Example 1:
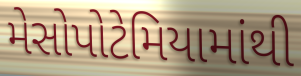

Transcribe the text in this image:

મેસોપોટેમિયામાંથી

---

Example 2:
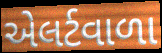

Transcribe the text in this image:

એલર્ટવાળા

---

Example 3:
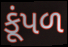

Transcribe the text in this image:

કૂંપળ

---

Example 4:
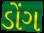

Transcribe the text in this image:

ડોંગ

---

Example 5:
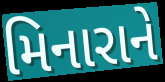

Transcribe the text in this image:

મિનારાને